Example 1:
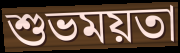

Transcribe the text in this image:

শুভময়তা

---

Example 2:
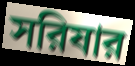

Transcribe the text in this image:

সরিষার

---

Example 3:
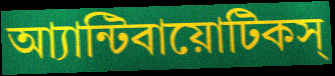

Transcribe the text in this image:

আ্যান্টিবায়োটিকস্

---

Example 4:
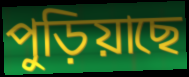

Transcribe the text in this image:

পুড়িয়াছে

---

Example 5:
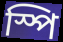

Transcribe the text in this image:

স্পি